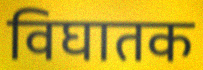
विघातक